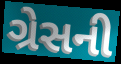
ગ્રેસની